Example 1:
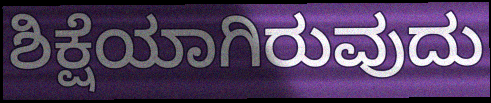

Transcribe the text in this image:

ಶಿಕ್ಷೆಯಾಗಿರುವುದು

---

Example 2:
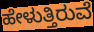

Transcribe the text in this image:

ಹೇಳುತ್ತಿರುವೆ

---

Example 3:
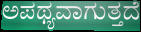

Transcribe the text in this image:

ಅಪಥ್ಯವಾಗುತ್ತದೆ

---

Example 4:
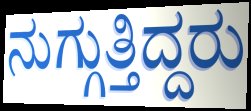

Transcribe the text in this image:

ನುಗ್ಗುತ್ತಿದ್ದರು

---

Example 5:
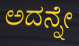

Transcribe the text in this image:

ಅದನ್ನೇ